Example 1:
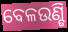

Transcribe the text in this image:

ବେଳଉଣ୍ଡି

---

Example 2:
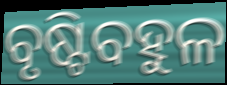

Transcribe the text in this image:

ବୃଷ୍ଟିବହୁଳ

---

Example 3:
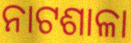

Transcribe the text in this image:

ନାଟଶାଳା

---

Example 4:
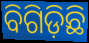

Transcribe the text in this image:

ବିଗିଡ଼ିଛି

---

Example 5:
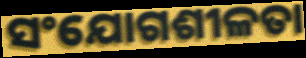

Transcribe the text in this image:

ସଂଯୋଗଶୀଳତା